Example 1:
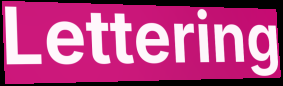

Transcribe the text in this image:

Lettering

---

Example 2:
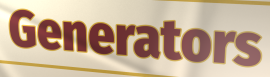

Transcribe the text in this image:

Generators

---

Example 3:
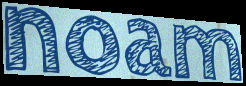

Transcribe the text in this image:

noam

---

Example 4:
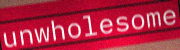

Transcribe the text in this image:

unwholesome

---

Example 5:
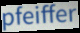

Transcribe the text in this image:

pfeiffer